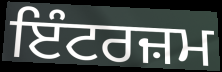
ਇੰਟਰਜ਼ਮ